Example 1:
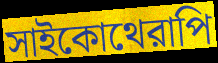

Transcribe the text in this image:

সাইকোথেরাপি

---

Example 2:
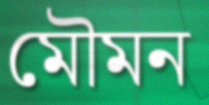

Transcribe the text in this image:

মৌমন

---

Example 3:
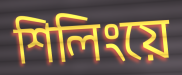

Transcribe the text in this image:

শিলিংয়ে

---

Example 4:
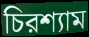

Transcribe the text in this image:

চিরশ্যাম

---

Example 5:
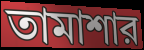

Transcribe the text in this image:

তামাশার